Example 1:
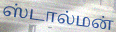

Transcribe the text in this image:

ஸ்டால்மன்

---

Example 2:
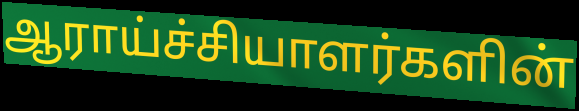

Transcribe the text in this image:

ஆராய்ச்சியாளர்களின்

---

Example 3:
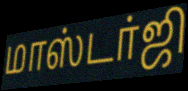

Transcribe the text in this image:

மாஸ்டர்ஜி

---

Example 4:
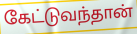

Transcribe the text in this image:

கேட்டுவந்தான்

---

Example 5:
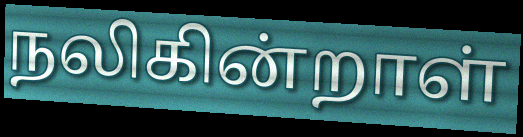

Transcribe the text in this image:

நலிகின்றாள்